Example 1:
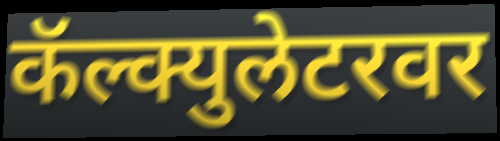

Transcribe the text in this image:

कॅल्क्युलेटरवर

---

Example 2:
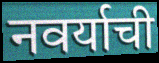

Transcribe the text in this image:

नवर्याची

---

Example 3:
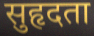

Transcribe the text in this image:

सुहृदता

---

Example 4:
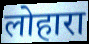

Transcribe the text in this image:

लोहारा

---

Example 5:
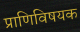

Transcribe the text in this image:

प्राणिविषयक